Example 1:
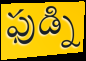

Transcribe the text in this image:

ఫుడ్ని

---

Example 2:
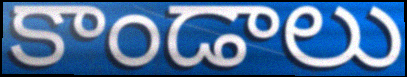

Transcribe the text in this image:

కాండాలు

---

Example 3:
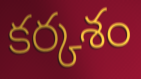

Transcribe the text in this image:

కర్కశం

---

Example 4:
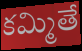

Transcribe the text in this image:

కమ్మితే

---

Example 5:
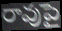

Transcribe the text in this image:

రావుపై